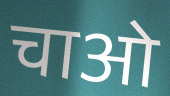
चाओ